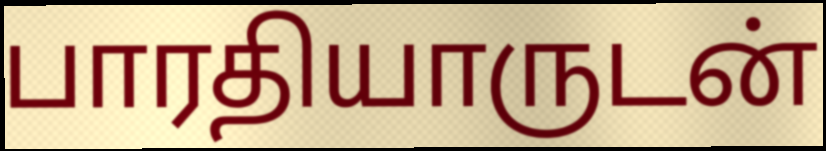
பாரதியாருடன்